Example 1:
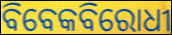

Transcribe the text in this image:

ବିବେକବିରୋଧୀ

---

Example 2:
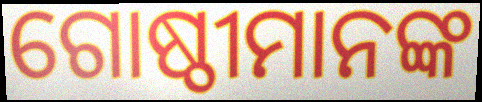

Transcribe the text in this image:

ଗୋଷ୍ଠୀମାନଙ୍କ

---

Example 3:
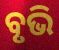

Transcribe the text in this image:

ବୃଭି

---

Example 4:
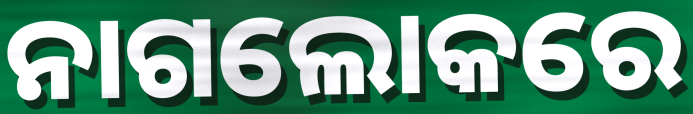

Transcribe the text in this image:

ନାଗଲୋକରେ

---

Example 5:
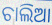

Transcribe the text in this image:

ଚାଲିଆ